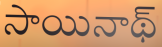
సాయినాథ్